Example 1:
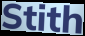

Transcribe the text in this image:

Stith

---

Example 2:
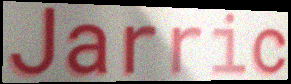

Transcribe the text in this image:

Jarric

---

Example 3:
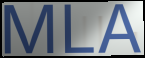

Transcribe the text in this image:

MLA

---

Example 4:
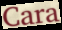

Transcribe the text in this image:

Cara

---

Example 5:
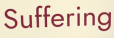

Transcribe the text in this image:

Suffering